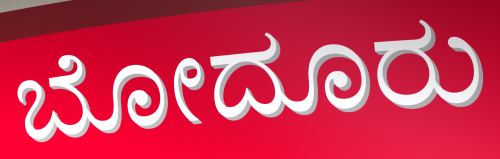
ಬೋದೂರು